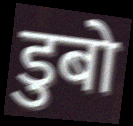
डुबो